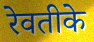
रेवतीके